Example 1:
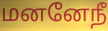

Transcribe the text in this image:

மனனேநீ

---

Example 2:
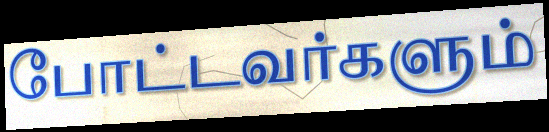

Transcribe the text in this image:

போட்டவர்களும்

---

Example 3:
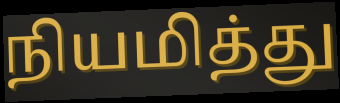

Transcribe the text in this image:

நியமித்து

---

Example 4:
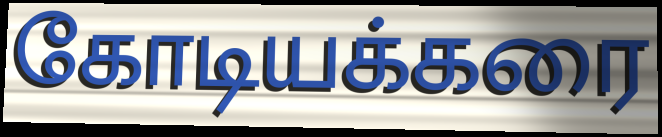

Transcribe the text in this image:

கோடியக்கரை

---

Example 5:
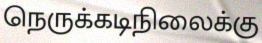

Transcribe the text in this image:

நெருக்கடிநிலைக்கு